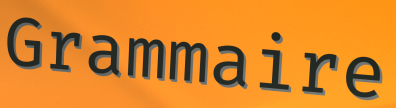
Grammaire